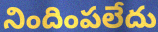
నిందింపలేదు